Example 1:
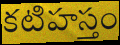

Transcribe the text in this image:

కటిహస్తం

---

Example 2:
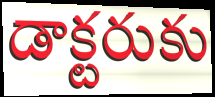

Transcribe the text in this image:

డాక్టరుకు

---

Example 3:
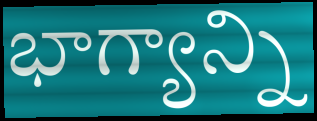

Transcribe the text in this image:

భాగ్యాన్ని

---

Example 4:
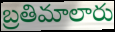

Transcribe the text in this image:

బ్రతిమాలారు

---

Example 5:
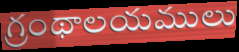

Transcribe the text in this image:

గ్రంథాలయములు